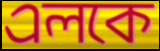
এলকে